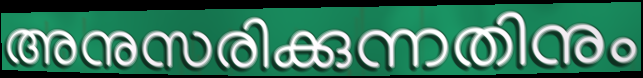
അനുസരിക്കുന്നതിനും